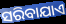
ସରିବାଯାଏ